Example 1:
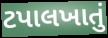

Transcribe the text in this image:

ટપાલખાતું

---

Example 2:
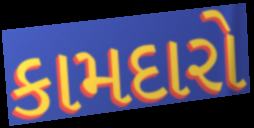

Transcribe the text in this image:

કામદારો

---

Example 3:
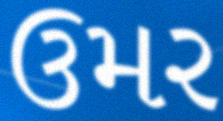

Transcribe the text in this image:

ઉમર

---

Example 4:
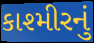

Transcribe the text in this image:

કાશ્મીરનું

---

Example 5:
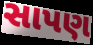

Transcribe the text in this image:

સાપણ